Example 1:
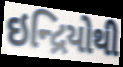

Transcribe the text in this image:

ઇન્દ્રિયોથી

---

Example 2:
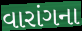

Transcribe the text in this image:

વારાંગના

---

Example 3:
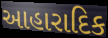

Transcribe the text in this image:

આહારાદિક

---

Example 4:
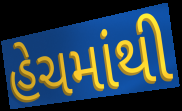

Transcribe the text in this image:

હેચમાંથી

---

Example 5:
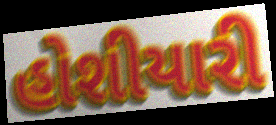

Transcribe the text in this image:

હોશીયારી